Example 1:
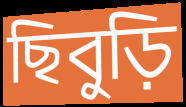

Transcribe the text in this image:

ছিবুড়ি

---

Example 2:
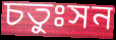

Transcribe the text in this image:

চতুঃসন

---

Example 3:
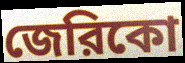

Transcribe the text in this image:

জেরিকো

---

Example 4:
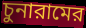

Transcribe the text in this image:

চুনারামের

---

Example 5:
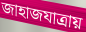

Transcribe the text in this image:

জাহাজযাত্রায়